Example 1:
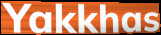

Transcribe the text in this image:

Yakkhas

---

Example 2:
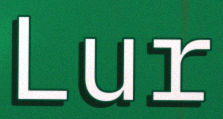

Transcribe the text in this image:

Lur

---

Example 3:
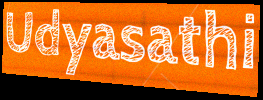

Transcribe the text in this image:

Udyasathi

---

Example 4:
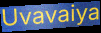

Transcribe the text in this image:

Uvavaiya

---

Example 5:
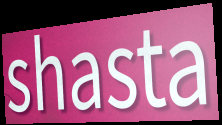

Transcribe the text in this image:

shasta